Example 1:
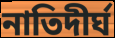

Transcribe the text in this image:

নাতিদীর্ঘ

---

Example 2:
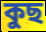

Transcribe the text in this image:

কুছ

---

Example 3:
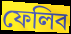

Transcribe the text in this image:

ফেলিব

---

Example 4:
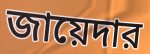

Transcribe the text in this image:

জায়েদার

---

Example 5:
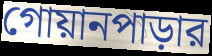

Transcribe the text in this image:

গোয়ানপাড়ার